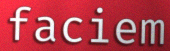
faciem